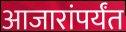
आजारांपर्यंत